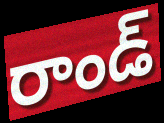
రాండ్